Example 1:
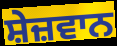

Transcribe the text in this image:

ਸ਼ੇਜ਼ਵਾਨ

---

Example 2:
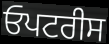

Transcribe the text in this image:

ਓਪਟਰੀਸ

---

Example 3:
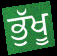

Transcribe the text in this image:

ਭੁੱਖੂ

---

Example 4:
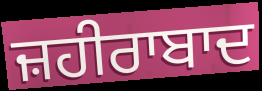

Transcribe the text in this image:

ਜ਼ਹੀਰਾਬਾਦ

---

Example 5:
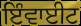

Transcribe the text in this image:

ਇੰਵਾਈਟ